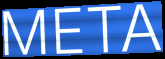
META